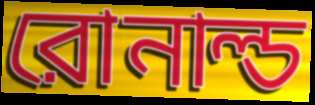
রোনাল্ড